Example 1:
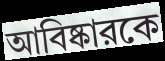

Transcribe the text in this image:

আবিষ্কারকে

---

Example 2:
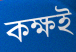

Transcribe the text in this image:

কক্ষই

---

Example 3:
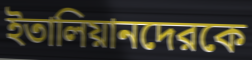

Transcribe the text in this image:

ইতালিয়ানদেরকে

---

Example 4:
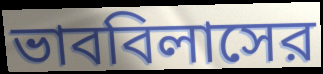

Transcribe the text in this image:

ভাববিলাসের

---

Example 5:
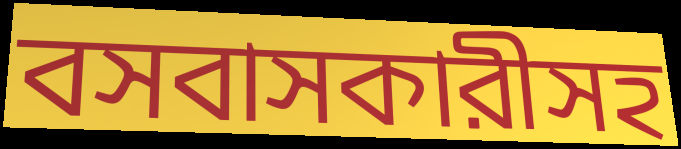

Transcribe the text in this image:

বসবাসকারীসহ